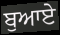
ਬੁਆਏ